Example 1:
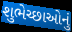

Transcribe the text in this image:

શુભેચ્છાઓનું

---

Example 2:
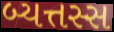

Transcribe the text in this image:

બ્યત્તસ્સ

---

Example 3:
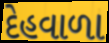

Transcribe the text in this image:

દેહવાળા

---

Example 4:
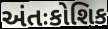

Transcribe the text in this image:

અંતઃકોશિક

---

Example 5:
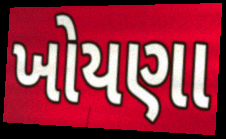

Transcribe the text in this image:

ખોયણા